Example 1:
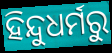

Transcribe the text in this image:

ହିନ୍ଦୁଧର୍ମରୁ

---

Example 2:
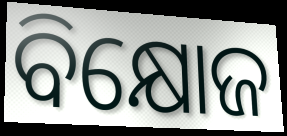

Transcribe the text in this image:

ବିକ୍ଷୋଜ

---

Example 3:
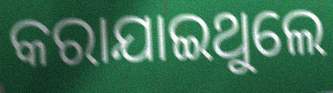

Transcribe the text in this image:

କରାଯାଇଥୁଲେ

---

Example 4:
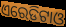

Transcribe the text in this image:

ଏରେଡିଟାଓ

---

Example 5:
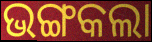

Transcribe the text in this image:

ଭଙ୍ଗକଲା